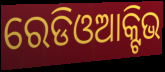
ରେଡିଓଆକ୍ଟିଭ